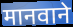
मानवाने